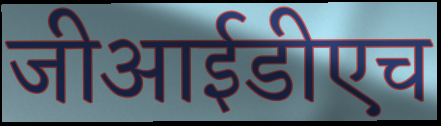
जीआईडीएच